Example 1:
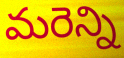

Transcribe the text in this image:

మరెన్ని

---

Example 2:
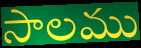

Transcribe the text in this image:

సాలము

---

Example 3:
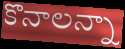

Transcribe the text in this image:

కొనాలన్నా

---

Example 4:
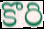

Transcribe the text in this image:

కొరి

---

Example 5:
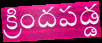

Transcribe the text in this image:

క్రిందపడ్డ